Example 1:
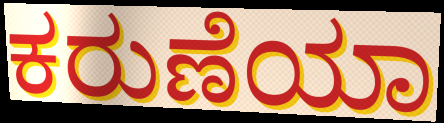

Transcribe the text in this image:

ಕರುಣೆಯಾ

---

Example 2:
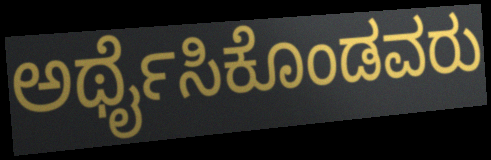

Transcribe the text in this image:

ಅರ್ಥೈಸಿಕೊಂಡವರು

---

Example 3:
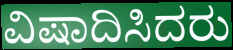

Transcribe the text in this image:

ವಿಷಾದಿಸಿದರು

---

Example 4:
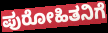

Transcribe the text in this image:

ಪುರೋಹಿತನಿಗೆ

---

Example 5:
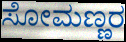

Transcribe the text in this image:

ಸೋಮಣ್ಣರ